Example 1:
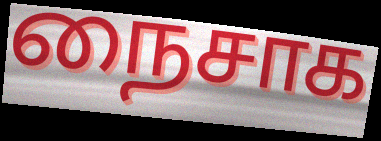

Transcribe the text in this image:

நைசாக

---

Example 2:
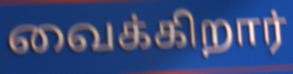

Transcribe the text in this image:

வைக்கிறார்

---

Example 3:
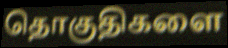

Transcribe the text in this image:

தொகுதிகளை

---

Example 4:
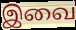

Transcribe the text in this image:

இவை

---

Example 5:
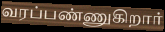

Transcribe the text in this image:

வரப்பண்ணுகிறார்